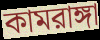
কামরাঙ্গা